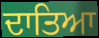
ਦਾਤਿਆ